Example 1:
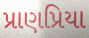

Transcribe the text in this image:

પ્રાણપ્રિયા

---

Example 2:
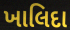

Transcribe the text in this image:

ખાલિદા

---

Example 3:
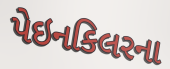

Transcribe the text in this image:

પેઇનકિલરના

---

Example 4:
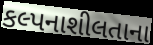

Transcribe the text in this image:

કલ્પનાશીલતાના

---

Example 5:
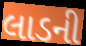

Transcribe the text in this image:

લાડની